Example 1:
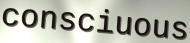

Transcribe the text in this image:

consciuous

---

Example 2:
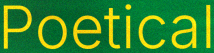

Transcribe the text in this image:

Poetical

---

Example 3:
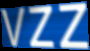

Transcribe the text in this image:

vzz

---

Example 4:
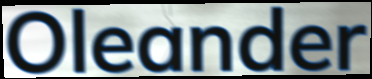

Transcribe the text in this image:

Oleander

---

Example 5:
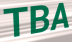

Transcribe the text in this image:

TBA